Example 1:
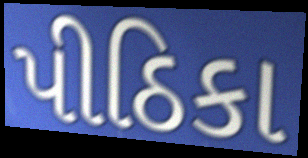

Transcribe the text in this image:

પીઠિકા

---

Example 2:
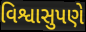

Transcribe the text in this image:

વિશ્વાસુપણે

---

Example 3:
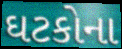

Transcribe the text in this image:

ઘટકોના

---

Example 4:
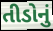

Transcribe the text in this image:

તીડોનું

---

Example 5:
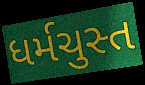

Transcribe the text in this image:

ધર્મચુસ્ત